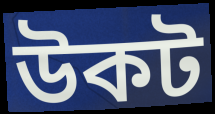
উকট